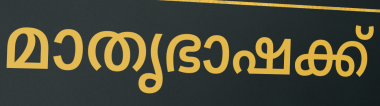
മാതൃഭാഷക്ക്